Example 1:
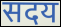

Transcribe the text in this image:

सदय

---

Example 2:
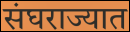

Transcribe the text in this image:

संघराज्यात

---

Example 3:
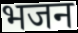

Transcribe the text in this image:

भजन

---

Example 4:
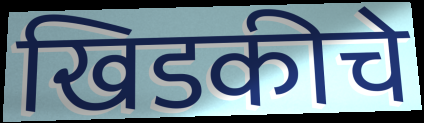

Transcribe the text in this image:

खिडकीचे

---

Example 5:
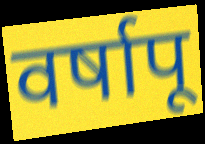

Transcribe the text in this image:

वर्षापू